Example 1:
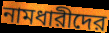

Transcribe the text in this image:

নামধারীদের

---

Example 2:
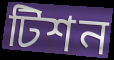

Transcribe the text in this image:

টিশন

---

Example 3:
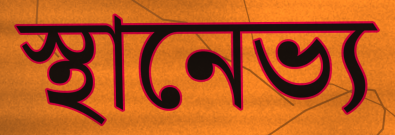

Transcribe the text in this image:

স্থানেভ্য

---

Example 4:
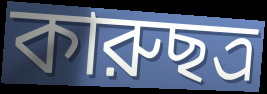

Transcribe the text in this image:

কারুছত্র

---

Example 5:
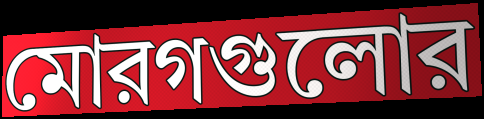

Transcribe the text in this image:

মোরগগুলোর